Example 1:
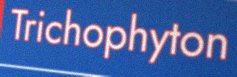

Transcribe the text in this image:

Trichophyton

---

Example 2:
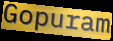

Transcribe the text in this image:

Gopuram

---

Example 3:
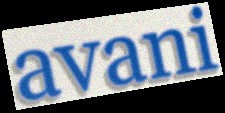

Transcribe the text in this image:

avani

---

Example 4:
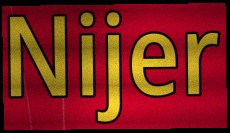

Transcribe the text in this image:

Nijer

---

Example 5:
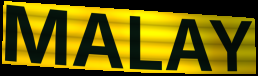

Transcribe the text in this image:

MALAY